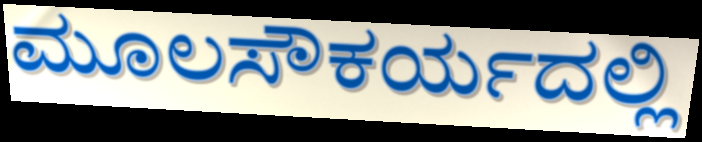
ಮೂಲಸೌಕರ್ಯದಲ್ಲಿ